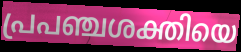
പ്രപഞ്ചശക്തിയെ